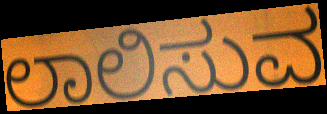
ಲಾಲಿಸುವ